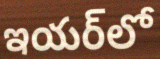
ఇయర్‌లో